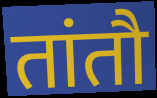
तांतौ